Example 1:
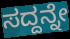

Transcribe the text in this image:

ಸದ್ದನ್ನೇ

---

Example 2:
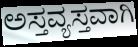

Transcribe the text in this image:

ಅಸ್ತವ್ಯಸ್ತವಾಗಿ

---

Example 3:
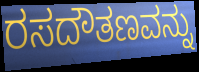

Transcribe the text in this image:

ರಸದೌತಣವನ್ನು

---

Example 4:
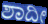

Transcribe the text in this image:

ಶಾದೀ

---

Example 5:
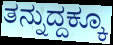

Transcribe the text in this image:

ತನ್ನುದ್ದಕ್ಕೂ